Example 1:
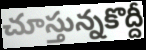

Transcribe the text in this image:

చూస్తున్నకొద్దీ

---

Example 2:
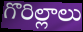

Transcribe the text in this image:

గొరిల్లాలు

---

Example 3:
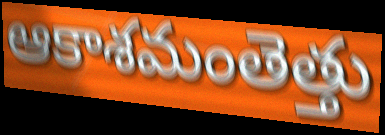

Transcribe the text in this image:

ఆకాశమంతెత్తు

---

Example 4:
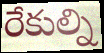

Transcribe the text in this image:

రేకుల్ని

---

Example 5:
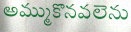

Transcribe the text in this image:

అమ్ముకొనవలెను